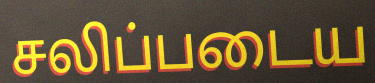
சலிப்படைய